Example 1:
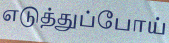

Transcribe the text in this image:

எடுத்துப்போய்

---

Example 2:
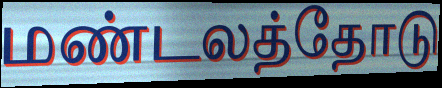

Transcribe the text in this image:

மண்டலத்தோடு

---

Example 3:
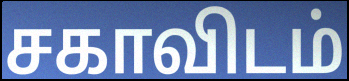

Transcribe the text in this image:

சகாவிடம்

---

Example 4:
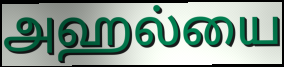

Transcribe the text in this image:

அஹல்யை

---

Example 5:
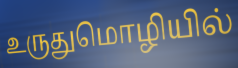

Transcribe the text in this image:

உருதுமொழியில்